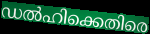
ഡൽഹിക്കെതിരെ